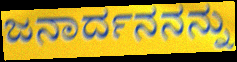
ಜನಾರ್ದನನನ್ನು